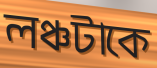
লঞ্চটাকে